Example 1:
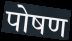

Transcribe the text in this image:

पोषण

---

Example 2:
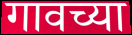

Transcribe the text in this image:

गावच्या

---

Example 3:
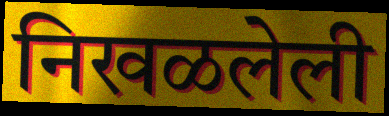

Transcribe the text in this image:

निखळलेली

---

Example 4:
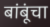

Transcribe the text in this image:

बांबूंचा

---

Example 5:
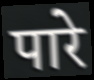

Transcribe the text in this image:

पारे